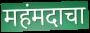
महंमदाचा